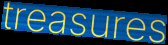
treasures